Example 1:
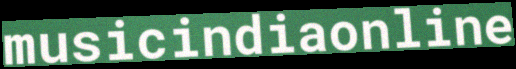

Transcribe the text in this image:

musicindiaonline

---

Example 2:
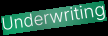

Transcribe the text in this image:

Underwriting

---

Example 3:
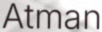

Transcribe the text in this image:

Atman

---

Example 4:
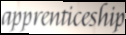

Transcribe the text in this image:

apprenticeship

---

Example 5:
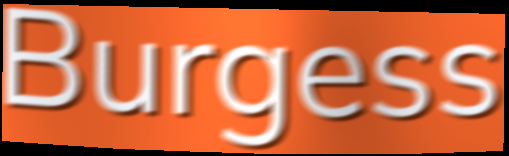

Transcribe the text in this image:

Burgess